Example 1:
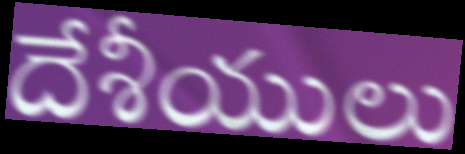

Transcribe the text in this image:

దేశీయులు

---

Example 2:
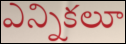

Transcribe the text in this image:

ఎన్నికలూ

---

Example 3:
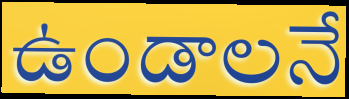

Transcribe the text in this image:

ఉండాలనే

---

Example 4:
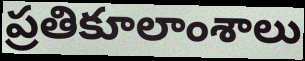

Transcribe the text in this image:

ప్రతికూలాంశాలు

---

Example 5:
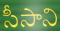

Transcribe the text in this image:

సీసాని